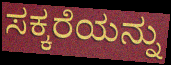
ಸಕ್ಕರೆಯನ್ನು